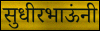
सुधीरभाऊंनी